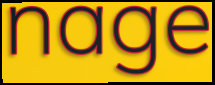
nage